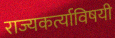
राज्यकर्त्याविषयी